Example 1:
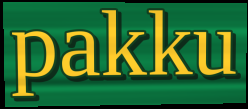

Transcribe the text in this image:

pakku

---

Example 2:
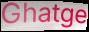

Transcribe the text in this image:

Ghatge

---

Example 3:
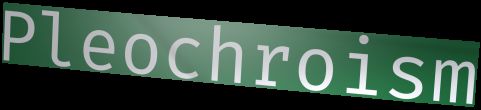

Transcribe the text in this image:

Pleochroism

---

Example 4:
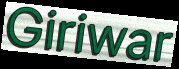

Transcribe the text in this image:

Giriwar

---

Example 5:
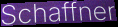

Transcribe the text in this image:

Schaffner